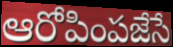
ఆరోపింపజేసే